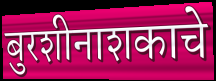
बुरशीनाशकाचे